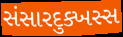
સંસારદુક્ખસ્સ